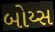
બોય્સ